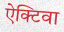
ऐक्टिवा